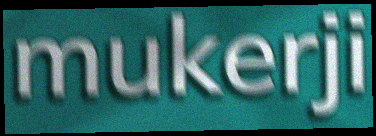
mukerji